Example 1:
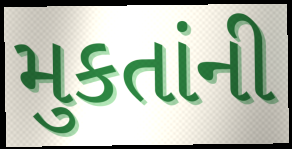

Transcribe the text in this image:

મુકતાંની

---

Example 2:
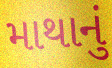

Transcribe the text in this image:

માથાનું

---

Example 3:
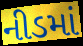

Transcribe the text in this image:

નીડમાં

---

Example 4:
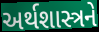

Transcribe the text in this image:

અર્થશાસ્ત્રને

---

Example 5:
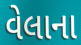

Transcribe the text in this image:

વેલાના